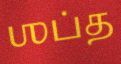
ஶப்த